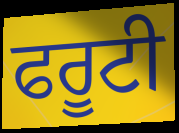
ਫਰੂਟੀ